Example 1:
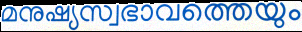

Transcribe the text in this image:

മനുഷ്യസ്വഭാവത്തെയും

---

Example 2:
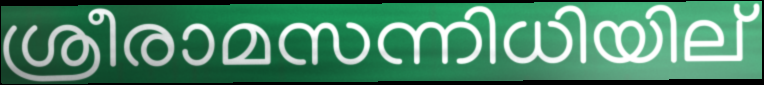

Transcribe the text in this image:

ശ്രീരാമസന്നിധിയില്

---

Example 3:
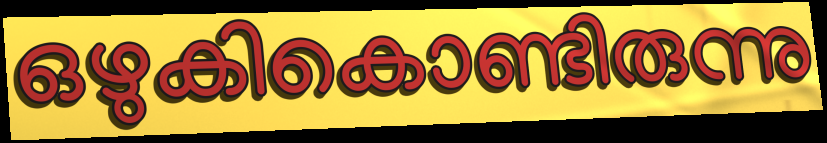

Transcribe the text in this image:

ഒഴുകികൊണ്ടിരുന്നു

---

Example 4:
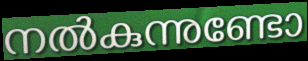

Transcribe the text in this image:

നൽകുന്നുണ്ടോ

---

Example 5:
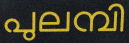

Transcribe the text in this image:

പുലമ്പി